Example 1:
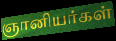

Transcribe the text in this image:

ஞானியர்கள்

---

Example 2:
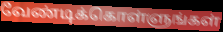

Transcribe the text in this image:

வேண்டிக்கொள்ளுங்கள்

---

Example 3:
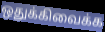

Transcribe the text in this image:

ஒதுக்கிவைக்க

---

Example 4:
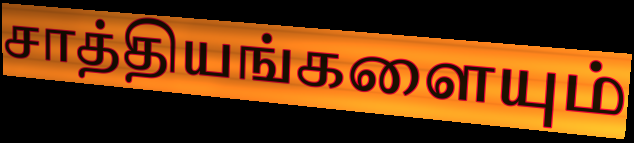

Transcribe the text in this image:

சாத்தியங்களையும்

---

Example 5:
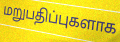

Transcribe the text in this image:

மறுபதிப்புகளாக